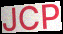
JCP